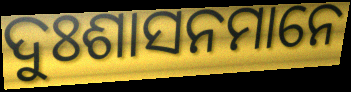
ଦୁଃଶାସନମାନେ